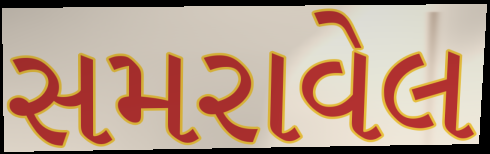
સમરાવેલ